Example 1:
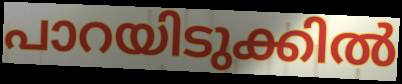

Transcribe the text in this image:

പാറയിടുക്കിൽ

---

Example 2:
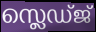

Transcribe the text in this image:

സ്ലെഡ്ജ്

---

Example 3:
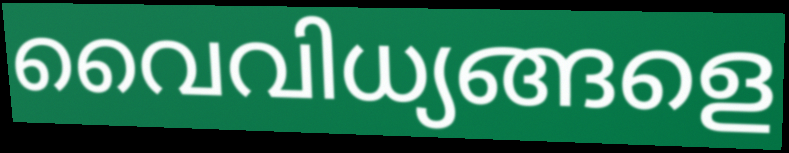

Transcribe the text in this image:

വൈവിധ്യങ്ങളെ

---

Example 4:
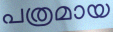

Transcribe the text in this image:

പത്രമായ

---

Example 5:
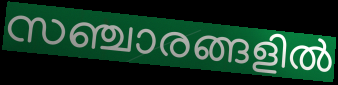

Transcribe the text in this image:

സഞ്ചാരങ്ങളിൽ